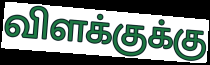
விளக்குக்கு